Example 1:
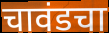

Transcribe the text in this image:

चावंडचा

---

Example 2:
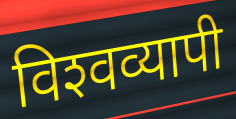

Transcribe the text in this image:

विश्‍वव्यापी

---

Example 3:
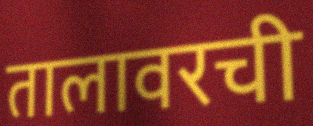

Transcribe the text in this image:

तालावरची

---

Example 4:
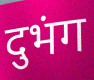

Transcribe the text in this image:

दुभंग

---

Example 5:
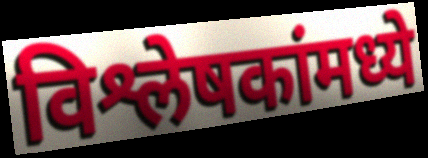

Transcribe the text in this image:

विश्लेषकांमध्ये